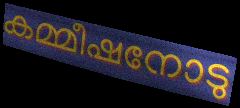
കമ്മീഷനോടു